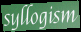
syllogism